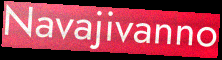
Navajivanno